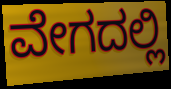
ವೇಗದಲ್ಲಿ